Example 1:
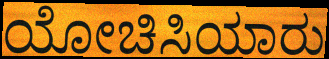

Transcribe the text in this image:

ಯೋಚಿಸಿಯಾರು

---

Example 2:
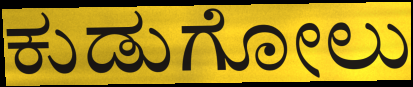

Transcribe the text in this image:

ಕುಡುಗೋಲು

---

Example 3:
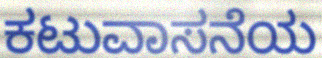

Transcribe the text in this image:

ಕಟುವಾಸನೆಯ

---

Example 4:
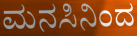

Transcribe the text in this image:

ಮನಸಿನಿಂದ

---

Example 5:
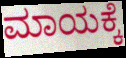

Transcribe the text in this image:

ಮಾಯಕ್ಕೆ